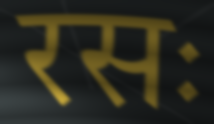
रसः